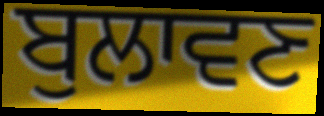
ਬੁਲਾਵਣ